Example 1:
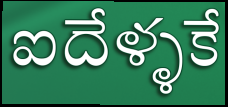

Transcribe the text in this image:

ఐదేళ్ళకే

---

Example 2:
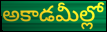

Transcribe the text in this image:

అకాడమీల్లో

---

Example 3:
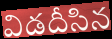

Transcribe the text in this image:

విడదీసిన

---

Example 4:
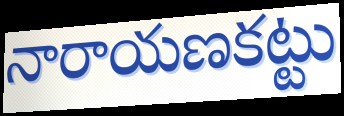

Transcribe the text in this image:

నారాయణకట్టు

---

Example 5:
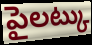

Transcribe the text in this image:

పైలట్కు